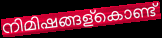
നിമിഷങ്ങള്കൊണ്ട്